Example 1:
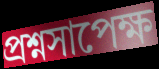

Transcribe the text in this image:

প্রশ্নসাপেক্ষ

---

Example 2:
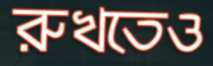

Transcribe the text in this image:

রুখতেও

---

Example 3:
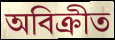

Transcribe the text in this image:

অবিক্রীত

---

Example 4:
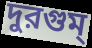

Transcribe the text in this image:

দুরগুম্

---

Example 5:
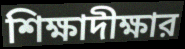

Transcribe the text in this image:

শিক্ষাদীক্ষার